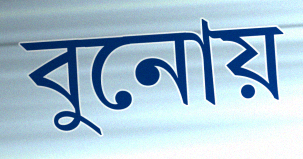
বুনোয়